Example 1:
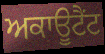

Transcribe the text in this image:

ਅਕਾਊਟੈਂਟ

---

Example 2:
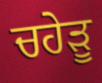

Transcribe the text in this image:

ਚਹੇਡ਼ੂ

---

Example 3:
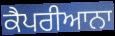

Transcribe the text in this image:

ਕੈਪਰੀਆਨਾ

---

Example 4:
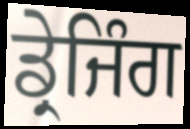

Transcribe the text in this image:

ਡ੍ਰੇਜਿੰਗ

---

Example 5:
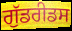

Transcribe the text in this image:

ਗੁੱਡਰੀਡਸ